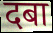
दबा